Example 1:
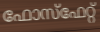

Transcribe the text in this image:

ഫോസ്ഫേറ്റ്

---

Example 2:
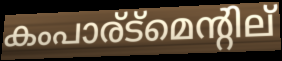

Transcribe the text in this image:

കംപാര്ട്മെന്റില്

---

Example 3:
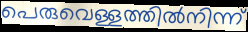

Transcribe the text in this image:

പെരുവെള്ളത്തിൽനിന്ന്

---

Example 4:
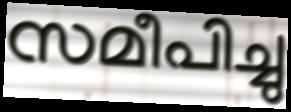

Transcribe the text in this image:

സമീപിച്ചു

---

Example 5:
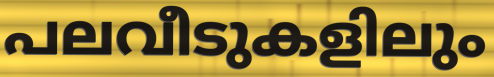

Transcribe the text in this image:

പലവീടുകളിലും